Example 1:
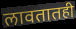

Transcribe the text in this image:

लावतातही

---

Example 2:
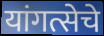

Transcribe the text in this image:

यांगत्सेचे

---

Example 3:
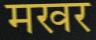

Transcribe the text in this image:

मखर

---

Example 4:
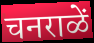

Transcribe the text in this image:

चनराळें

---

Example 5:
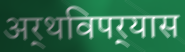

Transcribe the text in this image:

अर्थविपर्यास